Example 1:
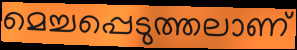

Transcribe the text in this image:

മെച്ചപ്പെടുത്തലാണ്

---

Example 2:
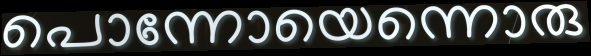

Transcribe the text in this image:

പൊന്നോയെന്നൊരു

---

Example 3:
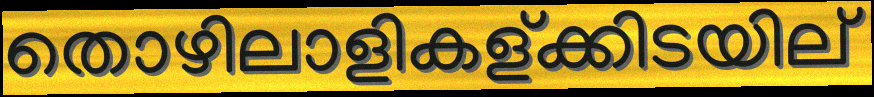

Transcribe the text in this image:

തൊഴിലാളികള്ക്കിടയില്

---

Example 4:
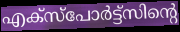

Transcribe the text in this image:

എക്സ്പോർട്ട്സിന്റെ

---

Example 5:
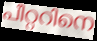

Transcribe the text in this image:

പീറ്ററിനെ